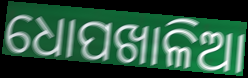
ଧୋପଖାଳିଆ